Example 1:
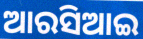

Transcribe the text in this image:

ଆରସିଆଇ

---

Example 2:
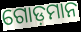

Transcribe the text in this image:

ଗୋଡ଼ମାନ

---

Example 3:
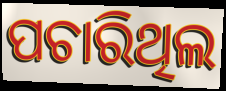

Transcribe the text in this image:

ପଚାରିଥିଲ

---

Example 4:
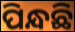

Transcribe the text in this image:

ପିନ୍ଧଛି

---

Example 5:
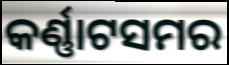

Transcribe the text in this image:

କର୍ଣ୍ଣାଟସମର